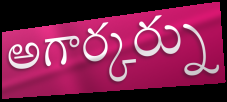
అగార్కర్ను